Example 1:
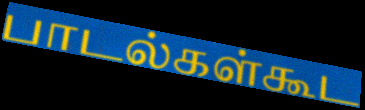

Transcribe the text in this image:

பாடல்கள்கூட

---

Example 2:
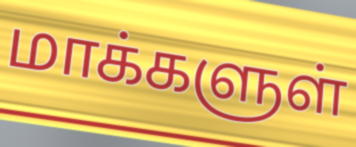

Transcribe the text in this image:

மாக்களுள்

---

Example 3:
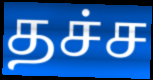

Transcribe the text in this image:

தச்ச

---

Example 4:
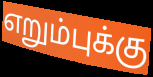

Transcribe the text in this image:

எறும்புக்கு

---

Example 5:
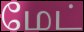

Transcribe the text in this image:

மேட்